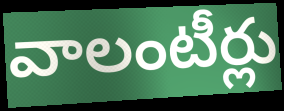
వాలంటీర్లు